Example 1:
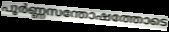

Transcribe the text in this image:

പൂർണ്ണസന്തോഷത്തോടെ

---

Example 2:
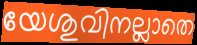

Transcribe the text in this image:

യേശുവിനല്ലാതെ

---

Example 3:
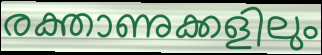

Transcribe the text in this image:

രക്താണുക്കളിലും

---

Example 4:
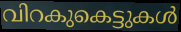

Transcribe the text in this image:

വിറകുകെട്ടുകൾ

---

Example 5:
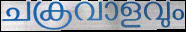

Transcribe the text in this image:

ചക്രവാളവും